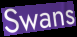
Swans